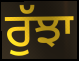
ਰੁੱਝਾ